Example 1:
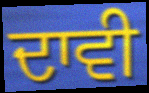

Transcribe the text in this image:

ਦਾਵੀ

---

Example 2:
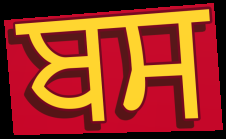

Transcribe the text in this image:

ਬਸ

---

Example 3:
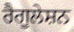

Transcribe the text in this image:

ਰੈਗੂਲੇਸ਼ਨ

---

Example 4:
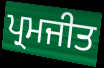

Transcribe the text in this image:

ਪ੍ਰਮਜੀਤ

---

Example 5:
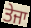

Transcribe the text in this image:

ਤੇਜਾ